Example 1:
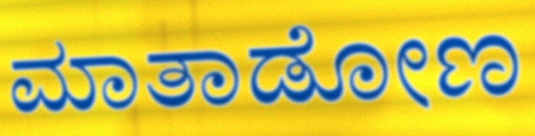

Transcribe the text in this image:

ಮಾತಾಡೋಣ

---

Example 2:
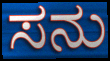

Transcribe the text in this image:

ಸನು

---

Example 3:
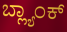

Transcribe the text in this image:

ಬ್ಲ್ಯಾಂಕ್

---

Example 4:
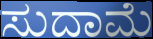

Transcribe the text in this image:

ಸುದಾಮೆ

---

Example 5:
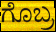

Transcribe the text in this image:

ಗೊಬ್ರ